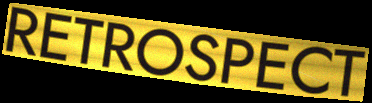
RETROSPECT